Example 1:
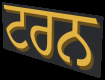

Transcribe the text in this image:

ਟਰਨ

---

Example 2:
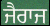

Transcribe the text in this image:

ਜੈਰਾਜ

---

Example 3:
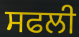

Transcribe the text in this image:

ਸਫਲੀ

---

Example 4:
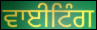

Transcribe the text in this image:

ਵਾਈਟਿੰਗ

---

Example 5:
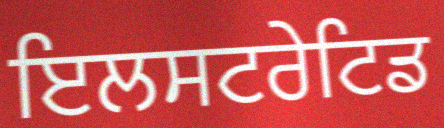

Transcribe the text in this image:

ਇਲਸਟਰੇਟਿਡ